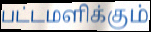
பட்டமளிக்கும்